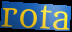
rota